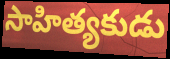
సాహిత్యకుడు